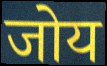
जोय